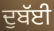
ਦੁਬੱਈ